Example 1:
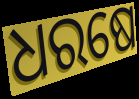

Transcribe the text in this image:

ଧରଷେ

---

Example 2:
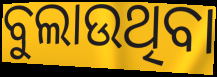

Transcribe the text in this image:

ବୁଲାଉଥିବା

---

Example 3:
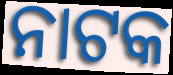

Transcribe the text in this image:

ନାଟକ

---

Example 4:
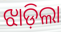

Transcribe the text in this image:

ଝାଡ଼ିଲା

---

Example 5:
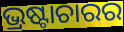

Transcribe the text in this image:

ଭ୍ରଷ୍ଟାଚାରର